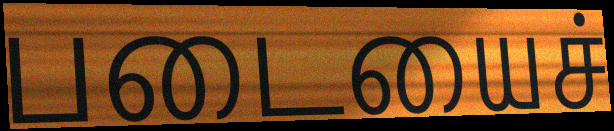
படையைச்